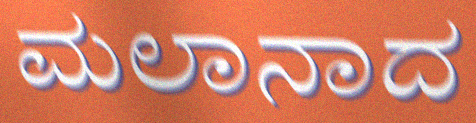
ಮಲಾನಾದ